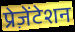
प्रेज़ेंटेशन